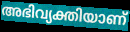
അഭിവ്യക്തിയാണ്